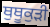
ਥੁਥੂਕੁੜੀ